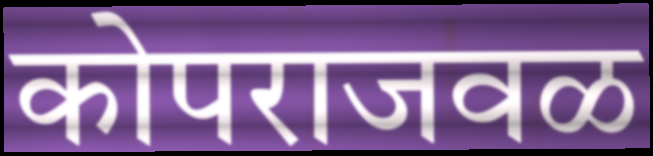
कोपराजवळ